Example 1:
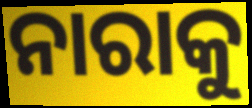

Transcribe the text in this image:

ନାରାକୁ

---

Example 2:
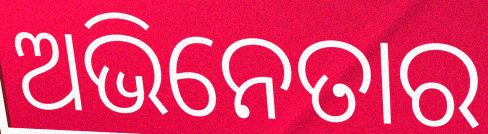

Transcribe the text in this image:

ଅଭିନେତାର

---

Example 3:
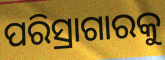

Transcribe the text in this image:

ପରିସ୍ରାଗାରକୁ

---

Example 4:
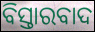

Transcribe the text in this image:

ବିସ୍ତାରବାଦ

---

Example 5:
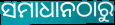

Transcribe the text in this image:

ସମାଧାନଠାରୁ